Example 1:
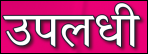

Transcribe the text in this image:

उपलधी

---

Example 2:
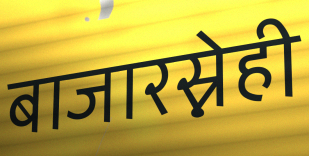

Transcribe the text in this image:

बाजारस्नेही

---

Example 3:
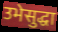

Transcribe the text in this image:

उभेसुद्धा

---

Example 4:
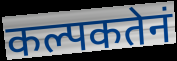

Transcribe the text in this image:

कल्पकतेनं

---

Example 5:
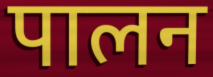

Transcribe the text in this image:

पालन